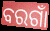
ବରଗାଁ